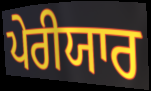
ਪੇਰੀਯਾਰ